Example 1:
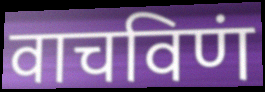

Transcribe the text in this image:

वाचविणं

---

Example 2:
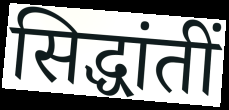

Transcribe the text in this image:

सिद्धांतीं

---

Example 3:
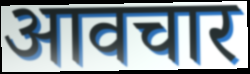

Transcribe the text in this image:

आवचार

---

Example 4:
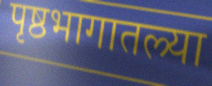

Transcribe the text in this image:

पृष्ठभागातल्या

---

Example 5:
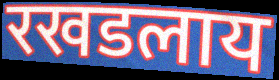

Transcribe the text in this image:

रखडलाय